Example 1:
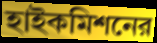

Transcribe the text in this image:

হাইকমিশনের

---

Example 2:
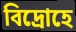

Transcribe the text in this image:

বিদ্রোহে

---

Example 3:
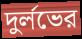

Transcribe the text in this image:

দুর্লভের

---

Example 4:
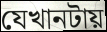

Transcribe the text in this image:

যেখানটায়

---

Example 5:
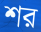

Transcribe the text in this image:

শর